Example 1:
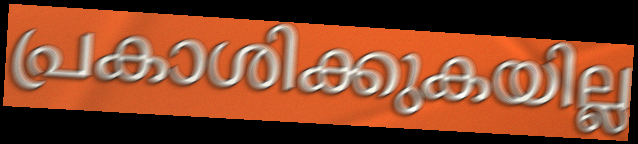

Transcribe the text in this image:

പ്രകാശിക്കുകയില്ല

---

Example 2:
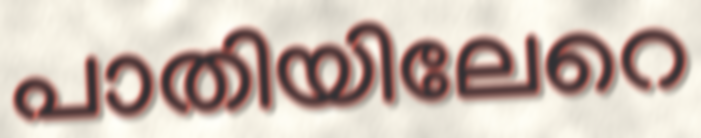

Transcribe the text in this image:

പാതിയിലേറെ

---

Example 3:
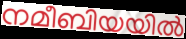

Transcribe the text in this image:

നമീബിയയിൽ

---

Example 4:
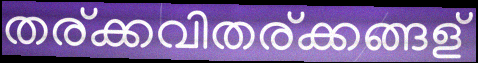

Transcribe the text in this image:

തര്ക്കവിതര്ക്കങ്ങള്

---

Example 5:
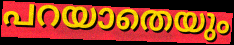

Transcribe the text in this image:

പറയാതെയും